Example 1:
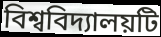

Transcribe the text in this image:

বিশ্ববিদ্যালয়টি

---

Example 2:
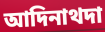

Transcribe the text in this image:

আদিনাথদা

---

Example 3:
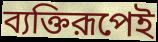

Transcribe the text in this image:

ব্যক্তিরূপেই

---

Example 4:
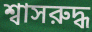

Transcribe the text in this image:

শ্বাসরুদ্ধ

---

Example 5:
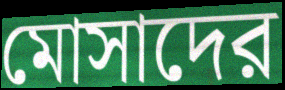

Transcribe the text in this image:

মোসাদের